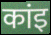
कांइ